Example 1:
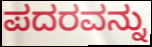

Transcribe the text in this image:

ಪದರವನ್ನು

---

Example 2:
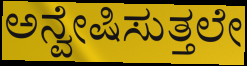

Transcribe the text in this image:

ಅನ್ವೇಷಿಸುತ್ತಲೇ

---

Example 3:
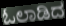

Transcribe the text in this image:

ಓಲಾಡಿದ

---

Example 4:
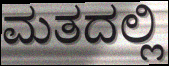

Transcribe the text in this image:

ಮತದಲ್ಲಿ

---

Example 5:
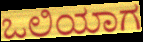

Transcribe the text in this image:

ಒಲಿಯಾಗ